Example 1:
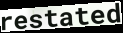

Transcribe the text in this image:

restated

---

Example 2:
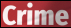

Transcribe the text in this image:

Crime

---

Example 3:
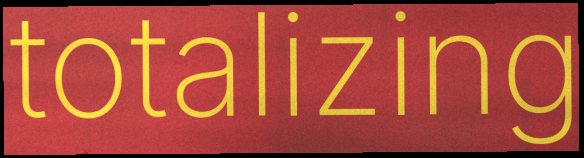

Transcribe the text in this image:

totalizing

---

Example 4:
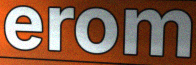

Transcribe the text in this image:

erom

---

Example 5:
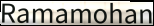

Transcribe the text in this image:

Ramamohan